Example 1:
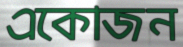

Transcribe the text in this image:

একোজন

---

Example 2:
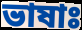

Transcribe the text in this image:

ভাষাঃ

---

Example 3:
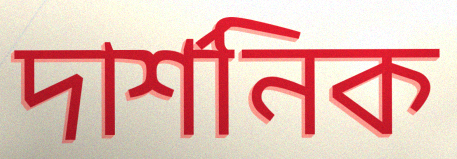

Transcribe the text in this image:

দাৰ্শনিক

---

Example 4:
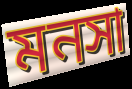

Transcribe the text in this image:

মনসা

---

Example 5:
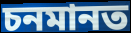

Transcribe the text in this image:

চনমানত